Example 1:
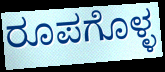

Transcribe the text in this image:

ರೂಪಗೊಳ್ಳ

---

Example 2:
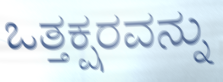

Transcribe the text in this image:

ಒತ್ತಕ್ಷರವನ್ನು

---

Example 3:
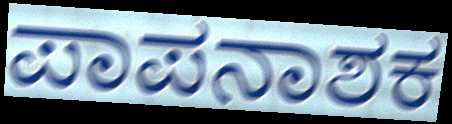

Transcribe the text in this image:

ಪಾಪನಾಶಕ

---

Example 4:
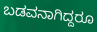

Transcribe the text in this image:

ಬಡವನಾಗಿದ್ದರೂ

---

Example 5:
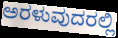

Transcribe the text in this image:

ಅರಳುವುದರಲ್ಲಿ